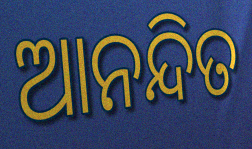
ଆନନ୍ଦିତ